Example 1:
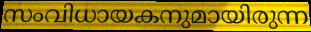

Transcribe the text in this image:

സംവിധായകനുമായിരുന്ന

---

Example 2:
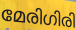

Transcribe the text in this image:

മേരിഗിരി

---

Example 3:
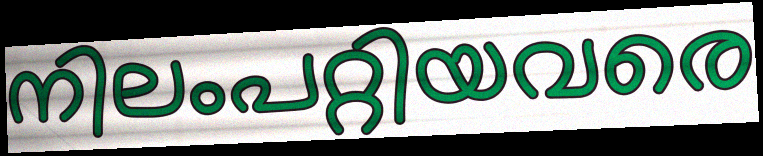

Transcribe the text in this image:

നിലംപറ്റിയവരെ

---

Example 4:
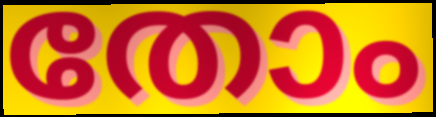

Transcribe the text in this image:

തോം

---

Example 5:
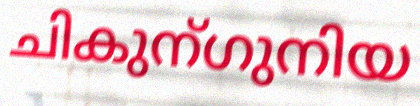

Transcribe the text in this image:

ചികുന്ഗുനിയ